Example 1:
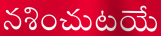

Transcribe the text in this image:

నశించుటయే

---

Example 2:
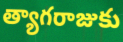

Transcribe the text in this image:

త్యాగరాజుకు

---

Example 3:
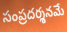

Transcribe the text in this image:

సంప్రదర్శనమే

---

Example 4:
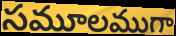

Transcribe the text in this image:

సమూలముగా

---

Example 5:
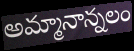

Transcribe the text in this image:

అమ్మానాన్నలం